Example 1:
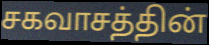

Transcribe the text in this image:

சகவாசத்தின்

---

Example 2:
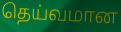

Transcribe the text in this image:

தெய்வமான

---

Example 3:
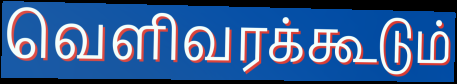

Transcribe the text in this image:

வெளிவரக்கூடும்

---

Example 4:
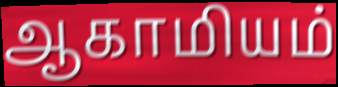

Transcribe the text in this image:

ஆகாமியம்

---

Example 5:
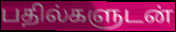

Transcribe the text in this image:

பதில்களுடன்